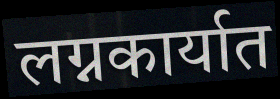
लग्नकार्यात